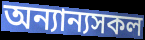
অন্যান্যসকল